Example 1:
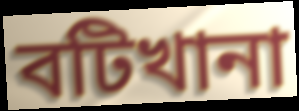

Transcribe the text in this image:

বটিখানা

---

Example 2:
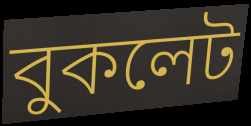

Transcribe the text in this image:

বুকলেট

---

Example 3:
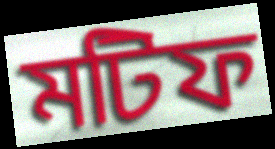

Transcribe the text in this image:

মটিফ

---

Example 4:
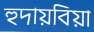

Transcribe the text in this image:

হুদায়বিয়া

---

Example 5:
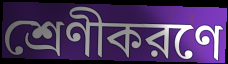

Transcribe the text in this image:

শ্রেণীকরণে